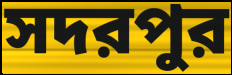
সদরপুর